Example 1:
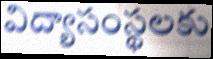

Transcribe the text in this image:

విద్యాసంస్థలకు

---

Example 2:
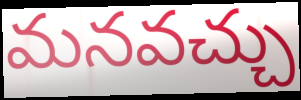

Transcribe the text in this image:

మనవచ్చు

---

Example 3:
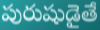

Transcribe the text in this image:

పురుషుడైతే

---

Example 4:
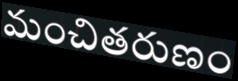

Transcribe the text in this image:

మంచితరుణం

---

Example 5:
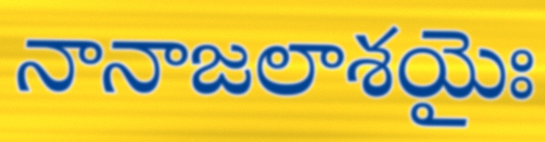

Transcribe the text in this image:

నానాజలాశయైః